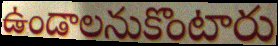
ఉండాలనుకొంటారు